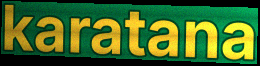
karatana